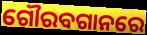
ଗୌରବଗାନରେ